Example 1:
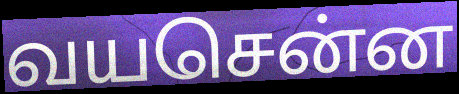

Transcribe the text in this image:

வயசென்ன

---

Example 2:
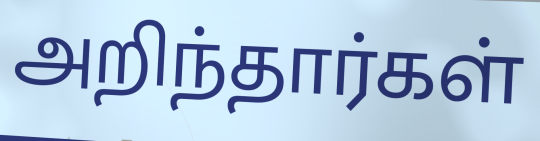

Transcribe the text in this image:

அறிந்தார்கள்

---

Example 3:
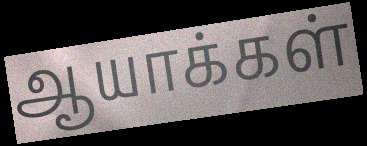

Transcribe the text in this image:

ஆயாக்கள்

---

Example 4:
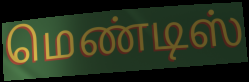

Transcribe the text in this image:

மெண்டிஸ்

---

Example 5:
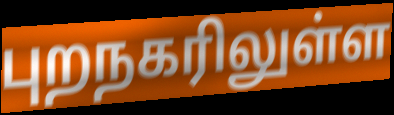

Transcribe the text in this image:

புறநகரிலுள்ள